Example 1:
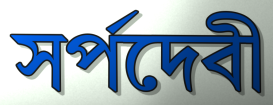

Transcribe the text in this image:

সর্পদেবী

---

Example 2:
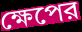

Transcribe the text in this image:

ক্ষেপের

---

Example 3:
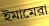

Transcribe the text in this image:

ইমামেরা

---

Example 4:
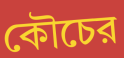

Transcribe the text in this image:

কৌচের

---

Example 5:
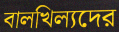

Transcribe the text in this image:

বালখিল্যদের